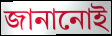
জানানোই